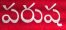
పరుష